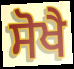
ਸੋਖੈ